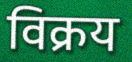
विक्रय